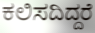
ಕಲಿಸದಿದ್ದರೆ